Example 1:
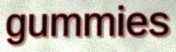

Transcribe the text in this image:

gummies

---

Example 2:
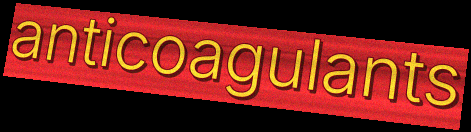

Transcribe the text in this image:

anticoagulants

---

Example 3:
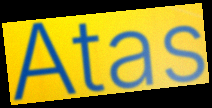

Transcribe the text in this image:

Atas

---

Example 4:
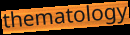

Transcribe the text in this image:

thematology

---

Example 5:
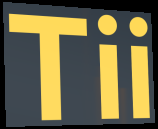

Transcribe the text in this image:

Tii